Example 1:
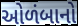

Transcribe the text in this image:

ઓળંબાનો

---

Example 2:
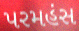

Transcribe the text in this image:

પરમહંસ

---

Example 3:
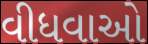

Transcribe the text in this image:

વીધવાઓ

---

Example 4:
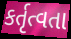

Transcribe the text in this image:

કર્તૃત્વતા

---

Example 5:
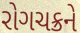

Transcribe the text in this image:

રોગચક્રને